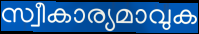
സ്വീകാര്യമാവുക